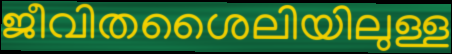
ജീവിതശൈലിയിലുള്ള